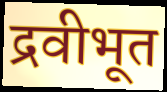
द्रवीभूत